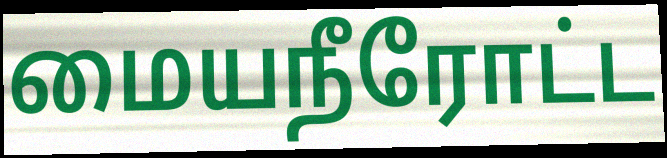
மையநீரோட்ட